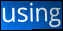
using